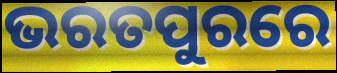
ଭରତପୁରରେ